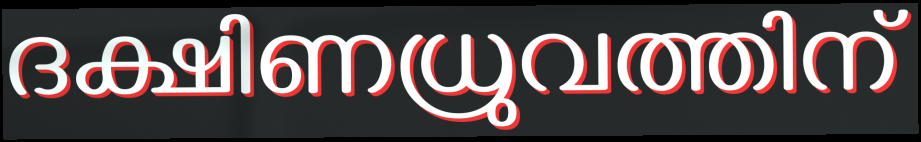
ദക്ഷിണധ്രുവത്തിന്